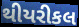
થીયરીકલ